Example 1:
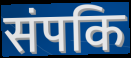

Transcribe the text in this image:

संपकि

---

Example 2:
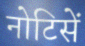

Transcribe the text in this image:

नोटिसें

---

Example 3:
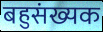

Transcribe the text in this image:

बहुसंख्यक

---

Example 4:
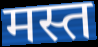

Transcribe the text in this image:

मस्‍त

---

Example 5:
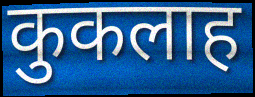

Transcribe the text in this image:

कुकलाह